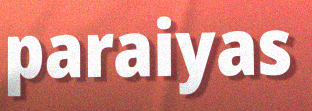
paraiyas